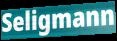
Seligmann